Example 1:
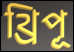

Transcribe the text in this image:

থ্রিপূ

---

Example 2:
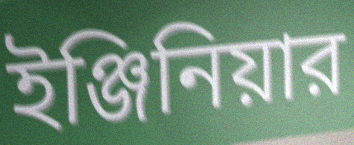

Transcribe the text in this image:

ইঞ্জিনিয়ার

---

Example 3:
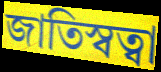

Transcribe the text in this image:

জাতিস্বত্বা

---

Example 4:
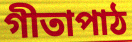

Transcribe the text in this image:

গীতাপাঠ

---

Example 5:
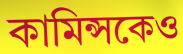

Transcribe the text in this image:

কামিন্সকেও